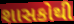
શાસકોથી